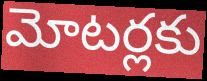
మోటర్లకు